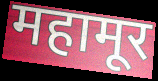
महामूर